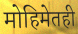
मोहिमेतही